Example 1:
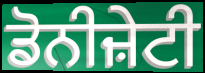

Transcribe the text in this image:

ਡੋਨੀਜ਼ੇਟੀ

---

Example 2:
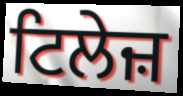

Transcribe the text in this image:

ਟਿਲੇਜ਼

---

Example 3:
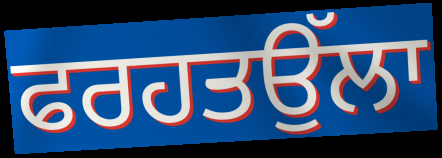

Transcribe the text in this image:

ਫਰਹਤਉੱਲਾ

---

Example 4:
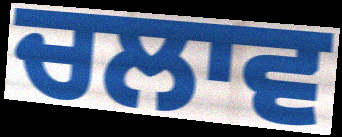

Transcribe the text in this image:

ਚਲਾਵ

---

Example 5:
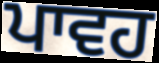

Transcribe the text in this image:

ਪਾਵਹ